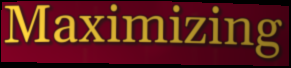
Maximizing